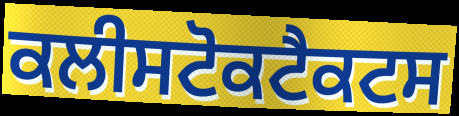
ਕਲੀਸਟੋਕਟੈਕਟਸ